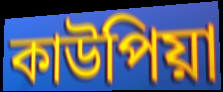
কাউপিয়া